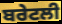
ਬਰੇਟਲੀ